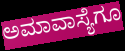
ಅಮಾವಾಸ್ಯೆಗೂ